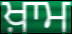
ਖ਼ਾਮ